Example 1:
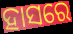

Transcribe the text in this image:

ହାସରେ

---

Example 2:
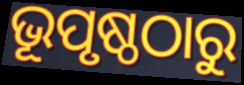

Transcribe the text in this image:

ଭୂପୃଷ୍ଠଠାରୁ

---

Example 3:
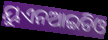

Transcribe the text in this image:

ୟୁଏନଆଇଡିଓ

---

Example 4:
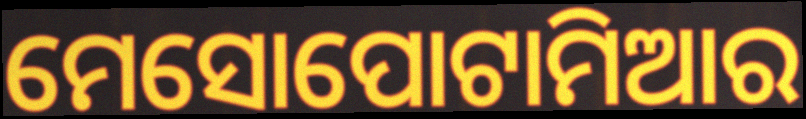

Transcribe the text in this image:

ମେସୋପୋଟାମିଆର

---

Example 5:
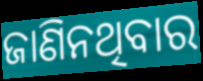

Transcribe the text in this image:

ଜାଣିନଥିବାର